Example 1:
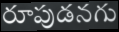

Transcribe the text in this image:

రూపుడనగు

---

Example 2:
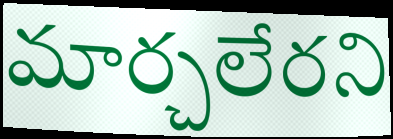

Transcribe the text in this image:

మార్చలేరని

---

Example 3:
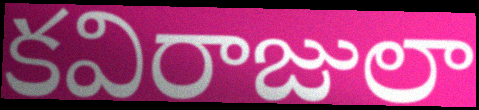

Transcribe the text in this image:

కవిరాజులా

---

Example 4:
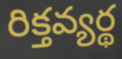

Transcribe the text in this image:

రిక్తవ్యర్థ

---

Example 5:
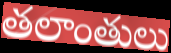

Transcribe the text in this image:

తలాంతులు